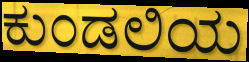
ಕುಂಡಲಿಯ